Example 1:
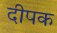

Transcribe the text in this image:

दीपक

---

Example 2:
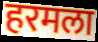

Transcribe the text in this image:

हरमला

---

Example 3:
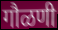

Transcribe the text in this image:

गौळणी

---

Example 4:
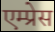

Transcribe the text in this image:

एम्प्रेस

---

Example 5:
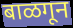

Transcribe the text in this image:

बाळगून